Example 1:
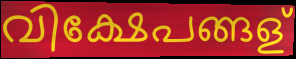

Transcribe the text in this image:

വിക്ഷേപങ്ങള്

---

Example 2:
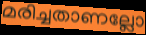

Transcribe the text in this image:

മരിച്ചതാണല്ലോ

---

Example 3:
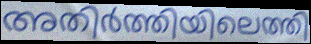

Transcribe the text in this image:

അതിർത്തിയിലെത്തി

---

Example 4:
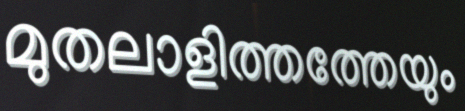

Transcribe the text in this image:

മുതലാളിത്തത്തേയും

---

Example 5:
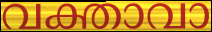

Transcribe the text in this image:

വക്താവാ